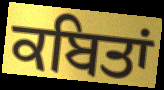
ਕਬਿਤਾਂ